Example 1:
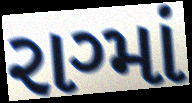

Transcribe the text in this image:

રાગ્માં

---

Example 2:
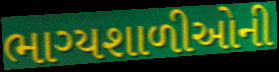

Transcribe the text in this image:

ભાગ્યશાળીઓની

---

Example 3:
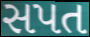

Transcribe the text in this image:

સપત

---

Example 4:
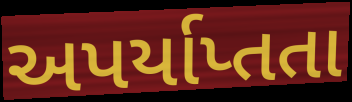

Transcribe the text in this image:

અપર્યાપ્તતા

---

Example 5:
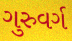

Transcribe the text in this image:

ગુરુવર્ગ